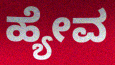
ಹ್ಯೇವ